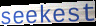
seekest